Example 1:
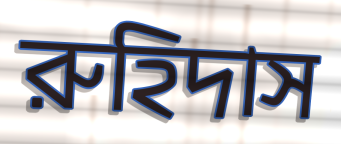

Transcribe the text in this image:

রুহিদাস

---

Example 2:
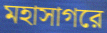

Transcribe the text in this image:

মহাসাগরে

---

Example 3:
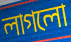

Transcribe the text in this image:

লাগলো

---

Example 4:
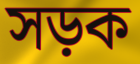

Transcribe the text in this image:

সড়ক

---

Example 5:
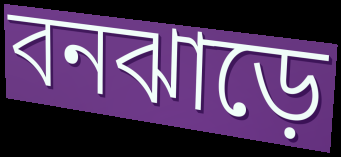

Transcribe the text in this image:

বনঝাড়ে